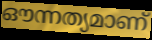
ഔന്നത്യമാണ്